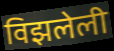
विझलेली